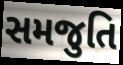
સમજુતિ